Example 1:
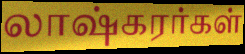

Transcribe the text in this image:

லாஷ்கரர்கள்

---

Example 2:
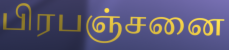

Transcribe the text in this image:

பிரபஞ்சனை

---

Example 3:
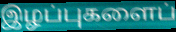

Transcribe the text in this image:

இழப்புகளைப்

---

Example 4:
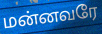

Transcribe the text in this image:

மன்னவரே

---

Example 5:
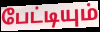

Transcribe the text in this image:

பேட்டியும்